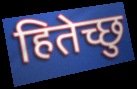
हितेच्छु